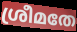
ശ്രീമതേ